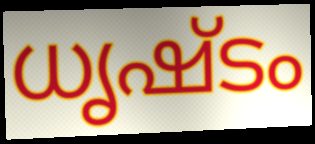
ധൃഷ്ടം